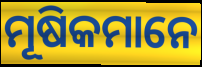
ମୂଷିକମାନେ